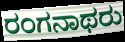
ರಂಗನಾಥರು